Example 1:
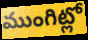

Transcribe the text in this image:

ముంగిట్లో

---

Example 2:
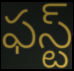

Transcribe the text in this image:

ఫస్ట్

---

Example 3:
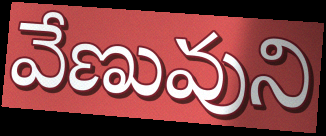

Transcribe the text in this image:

వేణువుని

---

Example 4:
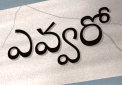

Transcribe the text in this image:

ఎవ్వరో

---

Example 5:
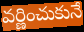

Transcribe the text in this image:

వర్ణించుకునే